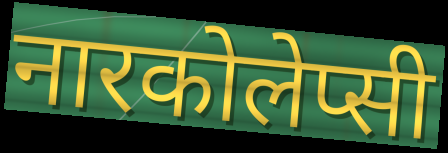
नारकोलेप्सी